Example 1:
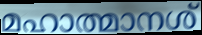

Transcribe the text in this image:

മഹാത്മാനശ്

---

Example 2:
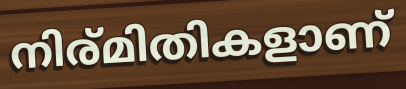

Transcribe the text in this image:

നിര്മിതികളാണ്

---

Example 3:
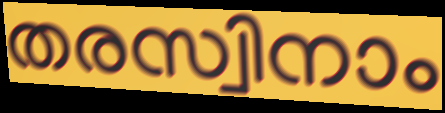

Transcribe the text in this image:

തരസ്വിനാം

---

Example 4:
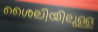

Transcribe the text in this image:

ശൈലിയിലുള്ള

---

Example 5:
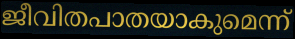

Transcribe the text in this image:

ജീവിതപാതയാകുമെന്ന്